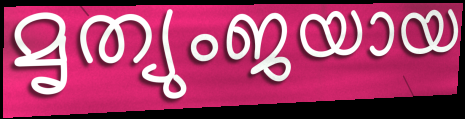
മൃത്യുംജയായ